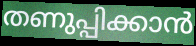
തണുപ്പിക്കാൻ